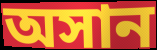
অসান